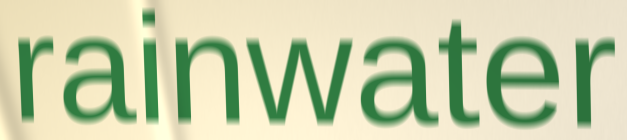
rainwater